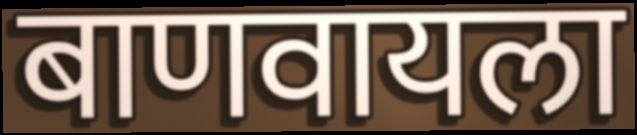
बाणवायला